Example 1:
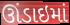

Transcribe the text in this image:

ઊંડાઇમાં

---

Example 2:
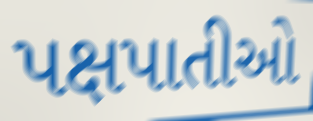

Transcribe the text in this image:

પક્ષપાતીઓ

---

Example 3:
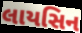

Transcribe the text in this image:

લાયસિન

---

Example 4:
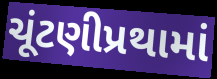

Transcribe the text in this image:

ચૂંટણીપ્રથામાં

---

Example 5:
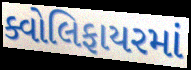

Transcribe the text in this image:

ક્વોલિફાયરમાં